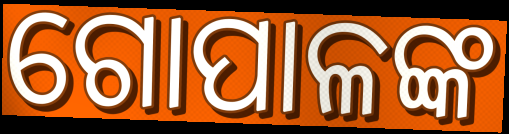
ଗୋପାଳଙ୍କ